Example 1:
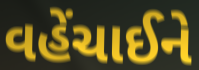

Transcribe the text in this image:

વહેંચાઈને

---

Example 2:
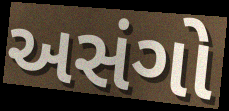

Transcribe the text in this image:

અસંગો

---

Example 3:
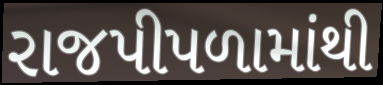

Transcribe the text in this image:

રાજપીપળામાંથી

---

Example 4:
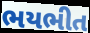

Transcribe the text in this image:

ભયભીત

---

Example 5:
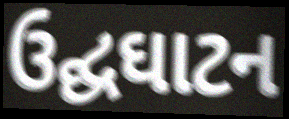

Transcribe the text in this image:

ઉદ્ઘઘાટન